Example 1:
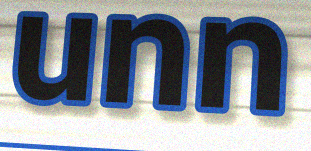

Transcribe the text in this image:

unn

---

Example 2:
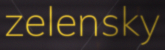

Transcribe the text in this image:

zelensky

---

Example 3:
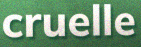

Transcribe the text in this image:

cruelle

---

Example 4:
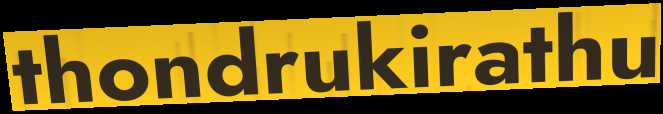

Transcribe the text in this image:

thondrukirathu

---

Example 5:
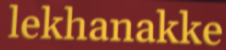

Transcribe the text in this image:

lekhanakke